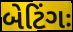
બેટિંગઃ